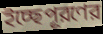
ইচ্ছেপূরণের